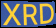
XRD